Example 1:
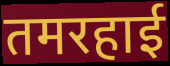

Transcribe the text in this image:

तमरहाई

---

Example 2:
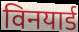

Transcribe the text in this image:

विनयार्ड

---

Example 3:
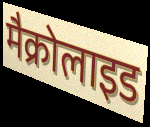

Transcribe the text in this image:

मैक्रोलाइड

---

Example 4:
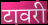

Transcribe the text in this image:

टावरी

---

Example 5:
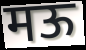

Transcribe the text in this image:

मऊ